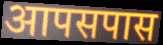
आपसपास